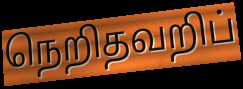
நெறிதவறிப்